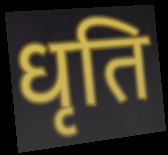
धृति